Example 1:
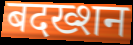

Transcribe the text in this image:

बदख्शन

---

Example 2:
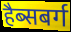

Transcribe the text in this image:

हैब्सबर्ग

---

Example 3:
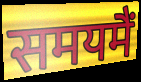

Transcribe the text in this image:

समयमैं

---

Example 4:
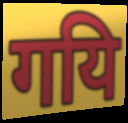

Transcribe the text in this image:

गयि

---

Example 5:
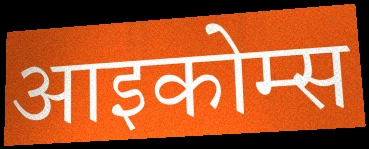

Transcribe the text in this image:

आइकोम्स